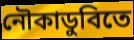
নৌকাডুবিতে